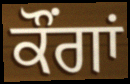
ਕੌਂਗਾਂ